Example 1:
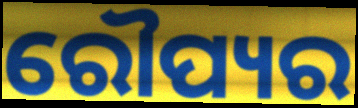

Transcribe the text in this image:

ରୌପ୍ୟର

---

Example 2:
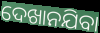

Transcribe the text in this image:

ଦେଖାନଯିବା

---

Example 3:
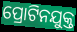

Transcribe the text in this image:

ପ୍ରୋଟିନଯୁକ୍ତ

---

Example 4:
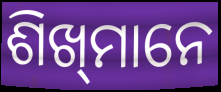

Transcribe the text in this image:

ଶିଖ୍‌ମାନେ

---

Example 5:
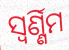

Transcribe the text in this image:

ସ୍ୱର୍ଣ୍ଣିମ